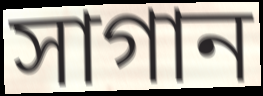
সাগান